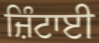
ਜ਼ਿੰਟਾਈ